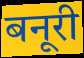
बनूरी